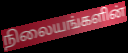
நிலையங்களின்